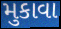
મુકાવા